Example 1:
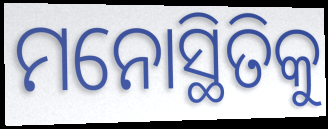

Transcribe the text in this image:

ମନୋସ୍ଥିତିକୁ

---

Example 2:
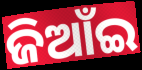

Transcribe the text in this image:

ଜିଆଁଇ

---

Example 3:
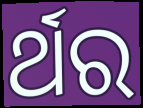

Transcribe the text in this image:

ର୍ଥର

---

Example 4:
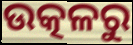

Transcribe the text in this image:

ଉତ୍କଳରୁ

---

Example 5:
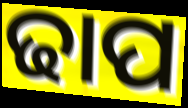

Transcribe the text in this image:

ଢାପ